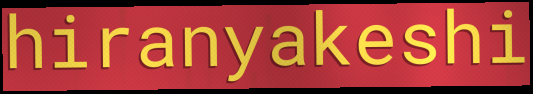
hiranyakeshi